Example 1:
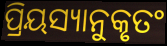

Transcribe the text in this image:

ପ୍ରିୟସ୍ୟାନୁକୃତଂ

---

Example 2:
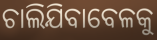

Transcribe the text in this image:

ଚାଲିଯିବାବେଳକୁ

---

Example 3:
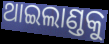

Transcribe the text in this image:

ଥାଇଲାଣ୍ଡକୁ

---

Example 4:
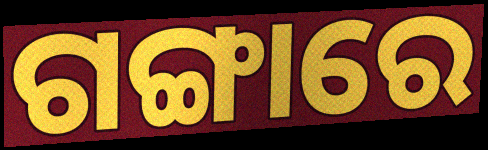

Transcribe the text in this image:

ଗଙ୍ଗାରେ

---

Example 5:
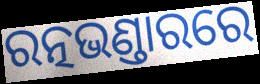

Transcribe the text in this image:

ରତ୍ନଭଣ୍ଡାରରେ